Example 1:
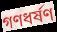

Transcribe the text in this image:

গণধর্ষণ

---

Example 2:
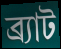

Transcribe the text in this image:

ব্র্যাট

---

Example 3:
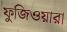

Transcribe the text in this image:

ফুজিওয়ারা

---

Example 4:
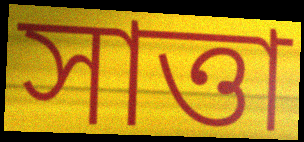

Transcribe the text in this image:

সাত্তা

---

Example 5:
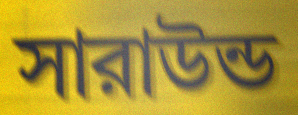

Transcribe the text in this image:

সারাউন্ড